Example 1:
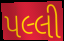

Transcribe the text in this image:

પલ્લી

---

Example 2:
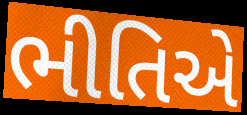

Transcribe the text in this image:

ભીતિએ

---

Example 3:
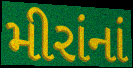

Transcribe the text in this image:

મીરાંનાં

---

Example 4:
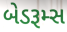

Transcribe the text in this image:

બેડરૂમ્સ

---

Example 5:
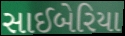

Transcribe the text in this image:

સાઈબેરિયા